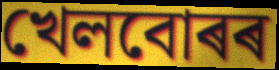
খেলবোৰৰ